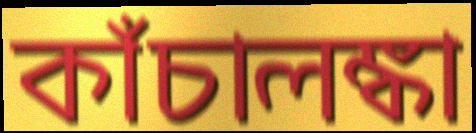
কাঁচালঙ্কা